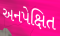
અનપેક્ષિત